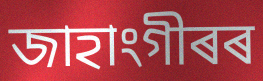
জাহাংগীৰৰ